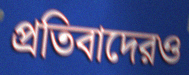
প্রতিবাদেরও